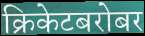
क्रिकेटबरोबर